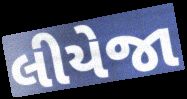
લીયેજા